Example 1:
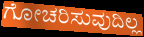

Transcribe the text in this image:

ಗೋಚರಿಸುವುದಿಲ್ಲ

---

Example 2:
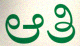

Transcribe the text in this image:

ಆತಿ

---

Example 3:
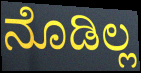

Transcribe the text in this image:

ನೊಡಿಲ್ಲ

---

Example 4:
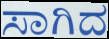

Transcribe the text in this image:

ಸಾಗಿದ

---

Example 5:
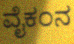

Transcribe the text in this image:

ವೈಕಂನ